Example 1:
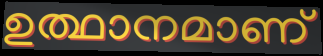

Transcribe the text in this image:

ഉത്ഥാനമാണ്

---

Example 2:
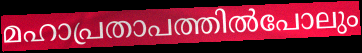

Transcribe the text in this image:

മഹാപ്രതാപത്തിൽപോലും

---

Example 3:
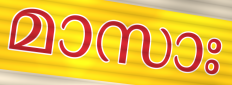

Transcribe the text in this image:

മാസാഃ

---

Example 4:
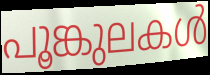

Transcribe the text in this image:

പൂങ്കുലകൾ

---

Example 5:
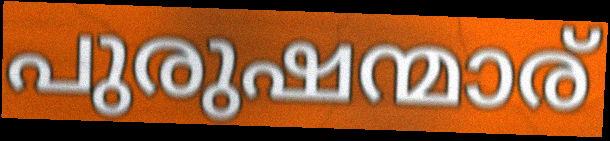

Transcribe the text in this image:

പുരുഷന്മാര്